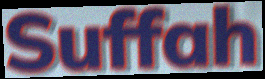
Suffah